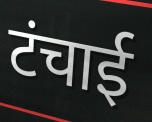
टंचाई